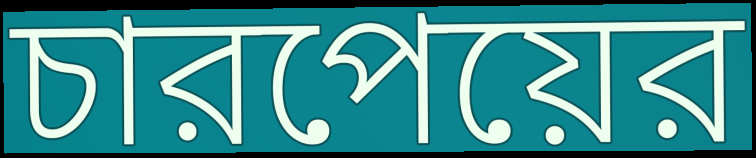
চারপেয়ের